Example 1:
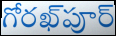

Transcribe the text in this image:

గోరఖ్‌పూర్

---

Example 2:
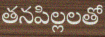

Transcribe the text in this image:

తనపిల్లలతో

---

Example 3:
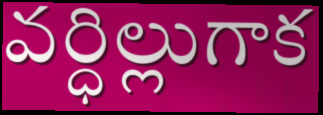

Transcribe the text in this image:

వర్ధిల్లుగాక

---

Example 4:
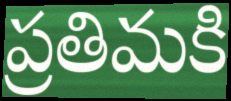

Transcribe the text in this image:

ప్రతిమకి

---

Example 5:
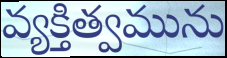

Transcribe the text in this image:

వ్యక్తిత్వమును